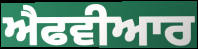
ਐਫਵੀਆਰ